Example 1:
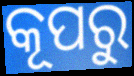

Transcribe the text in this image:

କୂପରୁ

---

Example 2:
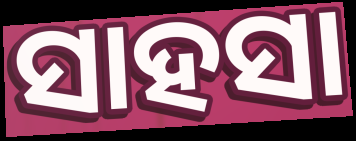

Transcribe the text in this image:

ସାହସା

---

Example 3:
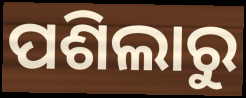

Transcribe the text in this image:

ପଶିଲାରୁ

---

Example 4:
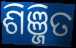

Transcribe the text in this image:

ଶିଞ୍ଜିତ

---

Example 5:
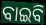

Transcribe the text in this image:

ବାଇବି